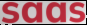
saas